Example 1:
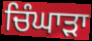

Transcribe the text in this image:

ਚਿੰਘਾੜਾ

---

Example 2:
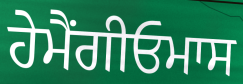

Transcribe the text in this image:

ਹੇਮੈਂਗੀਓਮਾਸ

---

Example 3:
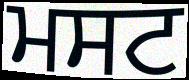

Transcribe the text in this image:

ਮਸਟ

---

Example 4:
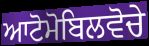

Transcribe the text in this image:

ਆਟੋਮੋਬਿਲਵੋਚੇ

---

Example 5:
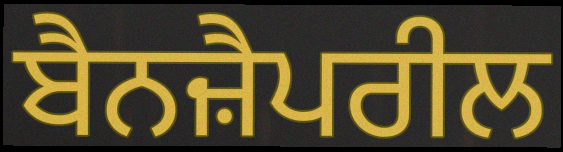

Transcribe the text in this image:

ਬੈਨਜ਼ੈਪਰੀਲ